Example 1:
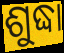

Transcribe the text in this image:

ଶୁଦ୍ଧା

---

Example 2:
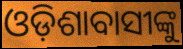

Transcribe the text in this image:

ଓଡ଼ିଶାବାସୀଙ୍କୁ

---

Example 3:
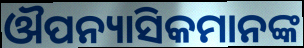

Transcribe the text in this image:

ଔପନ୍ୟାସିକମାନଙ୍କ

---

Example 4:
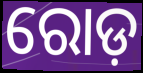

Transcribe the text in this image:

ରୋଡ଼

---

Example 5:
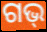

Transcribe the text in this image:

ଗଭ୍